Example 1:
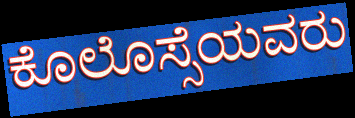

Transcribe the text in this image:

ಕೊಲೊಸ್ಸೆಯವರು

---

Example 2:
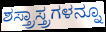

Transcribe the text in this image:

ಶಸ್ತ್ರಾಸ್ತ್ರಗಳನ್ನೂ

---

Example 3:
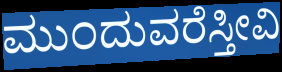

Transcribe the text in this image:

ಮುಂದುವರೆಸ್ತೀವಿ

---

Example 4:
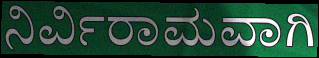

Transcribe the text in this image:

ನಿರ್ವಿರಾಮವಾಗಿ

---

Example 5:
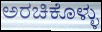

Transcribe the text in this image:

ಅರಚಿಕೊಳ್ಳು